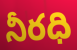
నీరధి